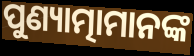
ପୁଣ୍ୟାତ୍ମାମାନଙ୍କ